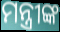
ମନ୍ତ୍ରୀଙ୍କ